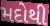
મદોથી